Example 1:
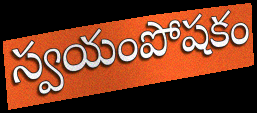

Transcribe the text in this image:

స్వయంపోషకం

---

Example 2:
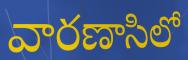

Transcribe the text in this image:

వారణాసిలో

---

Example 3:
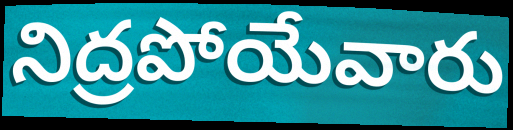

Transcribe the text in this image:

నిద్రపోయేవారు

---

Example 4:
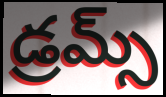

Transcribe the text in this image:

డ్రమ్స్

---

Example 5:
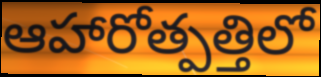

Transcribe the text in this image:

ఆహారోత్పత్తిలో